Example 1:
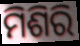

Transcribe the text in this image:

ମିଶିରି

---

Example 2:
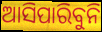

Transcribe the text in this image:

ଆସିପାରିବୁନି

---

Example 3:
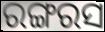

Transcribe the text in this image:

ରଙ୍ଗରସ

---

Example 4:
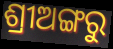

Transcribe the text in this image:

ଶ୍ରୀଅଙ୍ଗରୁ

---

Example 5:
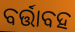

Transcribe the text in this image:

ବର୍ତ୍ତାବହ